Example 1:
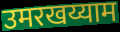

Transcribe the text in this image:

उमरखय्याम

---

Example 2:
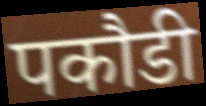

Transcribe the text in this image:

पकौडी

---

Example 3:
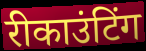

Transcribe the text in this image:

रीकाउंटिंग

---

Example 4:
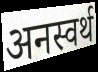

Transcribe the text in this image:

अनस्वर्थ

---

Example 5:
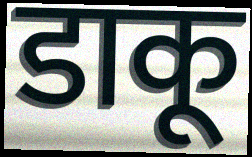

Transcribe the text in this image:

डाकू